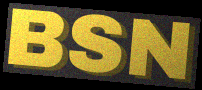
BSN